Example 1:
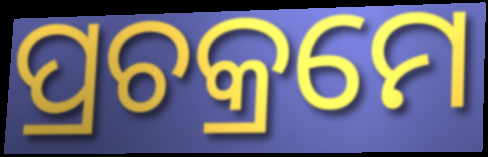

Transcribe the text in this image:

ପ୍ରଚକ୍ରମେ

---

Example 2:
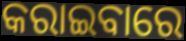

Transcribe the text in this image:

କରାଇବାରେ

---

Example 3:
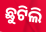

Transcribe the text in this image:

ଛୁଟିଲି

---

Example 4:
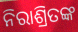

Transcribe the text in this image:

ନିରାଶ୍ରିତଙ୍କ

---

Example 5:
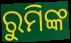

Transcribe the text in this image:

ରୁମିଙ୍କ